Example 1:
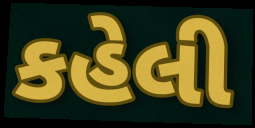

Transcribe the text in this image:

કહેલી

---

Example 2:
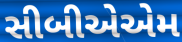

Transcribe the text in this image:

સીબીએએમ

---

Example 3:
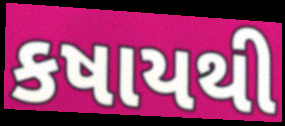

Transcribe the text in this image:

કષાયથી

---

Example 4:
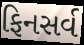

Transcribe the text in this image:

ફિનસર્વ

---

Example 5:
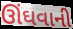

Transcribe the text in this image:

ઊંઘવાની